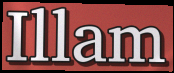
Illam